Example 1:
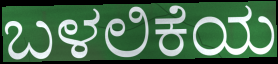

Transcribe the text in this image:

ಬಳಲಿಕೆಯ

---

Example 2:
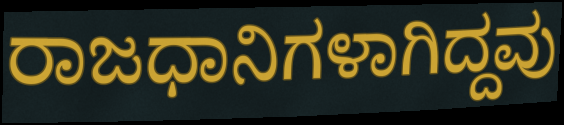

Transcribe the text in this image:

ರಾಜಧಾನಿಗಳಾಗಿದ್ದವು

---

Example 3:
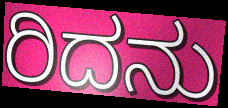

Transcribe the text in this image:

ರಿದನು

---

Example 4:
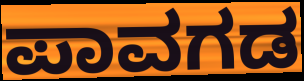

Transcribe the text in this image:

ಪಾವಗಡ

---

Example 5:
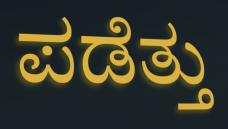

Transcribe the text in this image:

ಪಡೆತ್ತು